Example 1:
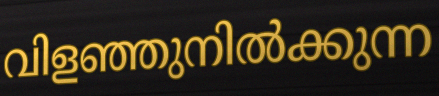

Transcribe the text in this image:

വിളഞ്ഞുനിൽക്കുന്ന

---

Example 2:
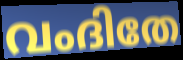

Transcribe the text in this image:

വംദിതേ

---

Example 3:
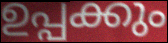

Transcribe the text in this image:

ഉപ്പക്കും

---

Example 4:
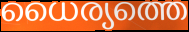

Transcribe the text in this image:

ധൈര്യത്തെ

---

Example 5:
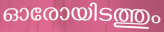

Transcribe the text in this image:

ഓരോയിടത്തും